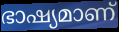
ഭാഷ്യമാണ്